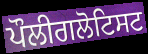
ਪੌਲੀਗਲੋਟਿਸਟ